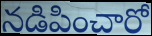
నడిపించారో